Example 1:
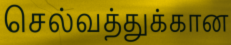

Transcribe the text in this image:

செல்வத்துக்கான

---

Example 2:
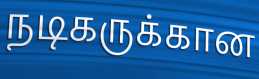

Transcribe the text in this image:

நடிகருக்கான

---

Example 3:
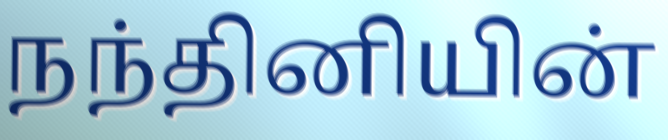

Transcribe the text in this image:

நந்தினியின்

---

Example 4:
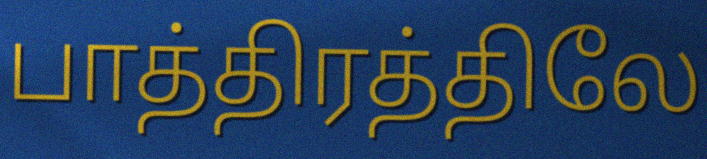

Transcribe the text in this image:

பாத்திரத்திலே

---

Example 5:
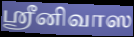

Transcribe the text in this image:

ஸ்ரீனிவாஸ